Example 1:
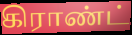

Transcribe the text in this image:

கிராண்ட்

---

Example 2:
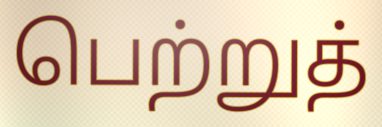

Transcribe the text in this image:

பெற்றுத்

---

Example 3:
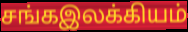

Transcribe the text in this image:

சங்கஇலக்கியம்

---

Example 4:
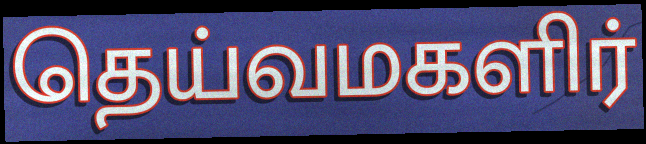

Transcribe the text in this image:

தெய்வமகளிர்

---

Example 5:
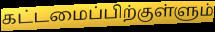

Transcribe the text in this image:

கட்டமைப்பிற்குள்ளும்